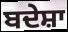
ਬਦੇਸ਼ਾ